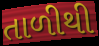
તાળીથી